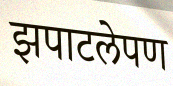
झपाटलेपण